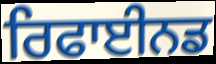
ਰਿਫਾਈਨਡ